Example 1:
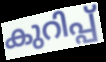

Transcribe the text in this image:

കുറിപ്പ്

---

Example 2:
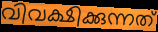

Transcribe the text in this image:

വിവക്ഷിക്കുന്നത്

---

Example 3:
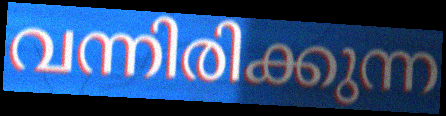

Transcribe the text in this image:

വന്നിരിക്കുന്ന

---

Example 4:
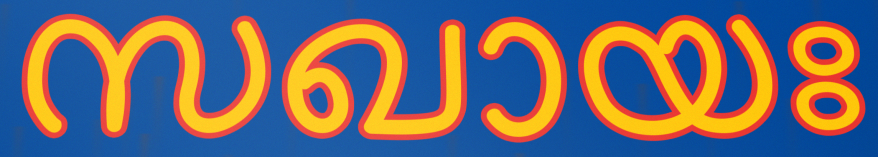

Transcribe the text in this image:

സഖായഃ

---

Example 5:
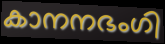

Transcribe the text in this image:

കാനനഭംഗി